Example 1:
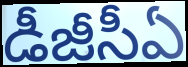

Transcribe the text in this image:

డీజీసీఏ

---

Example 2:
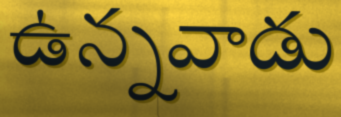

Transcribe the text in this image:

ఉన్నవాడు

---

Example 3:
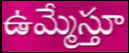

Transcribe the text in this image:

ఉమ్మేస్తూ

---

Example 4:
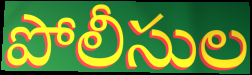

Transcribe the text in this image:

పోలీసుల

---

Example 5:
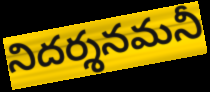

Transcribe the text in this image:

నిదర్శనమనీ